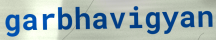
garbhavigyan